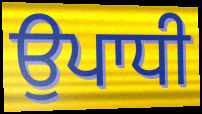
ਉਪਾਧੀ